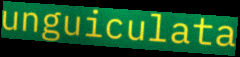
unguiculata